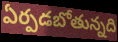
ఏర్పడబోతున్నది